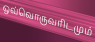
ஒவ்வொருவரிடமும்